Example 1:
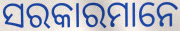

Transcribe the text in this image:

ସରକାରମାନେ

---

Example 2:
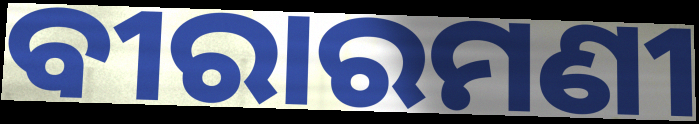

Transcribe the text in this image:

ବୀରାରମଣୀ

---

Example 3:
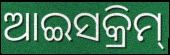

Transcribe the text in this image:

ଆଇସକ୍ରିମ୍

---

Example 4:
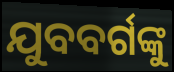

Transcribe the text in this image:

ଯୁବବର୍ଗଙ୍କୁ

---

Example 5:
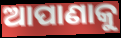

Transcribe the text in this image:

ଆପାଣାକୁ